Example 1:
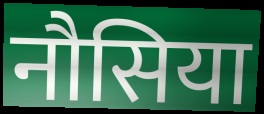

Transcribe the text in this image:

नौसिया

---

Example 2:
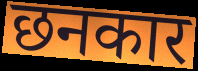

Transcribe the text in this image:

छनकार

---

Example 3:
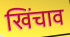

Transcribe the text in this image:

खिंचाव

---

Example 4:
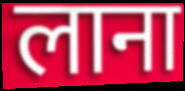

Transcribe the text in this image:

लाना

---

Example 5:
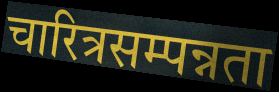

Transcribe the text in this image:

चारित्रसम्पन्नता